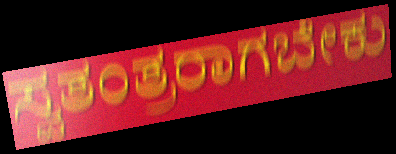
ಸ್ವತಂತ್ರರಾಗಬೇಕು